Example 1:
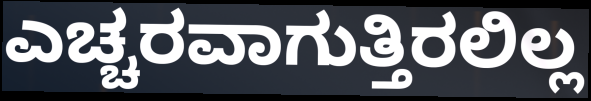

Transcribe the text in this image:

ಎಚ್ಚರವಾಗುತ್ತಿರಲಿಲ್ಲ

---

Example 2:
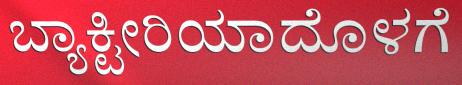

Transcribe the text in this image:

ಬ್ಯಾಕ್ಟೀರಿಯಾದೊಳಗೆ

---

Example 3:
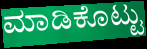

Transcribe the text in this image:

ಮಾಡಿಕೊಟ್ಟು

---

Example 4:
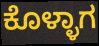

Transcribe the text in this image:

ಕೊಳ್ಳಾಗ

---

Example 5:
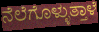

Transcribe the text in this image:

ನೆಲೆಗೊಳ್ಳುತ್ತಾಳೆ